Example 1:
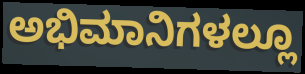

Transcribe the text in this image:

ಅಭಿಮಾನಿಗಳಲ್ಲೂ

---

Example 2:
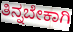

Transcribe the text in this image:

ತಿನ್ನಬೇಕಾಗಿ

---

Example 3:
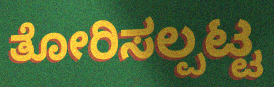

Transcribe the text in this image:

ತೋರಿಸಲ್ಪಟ್ಟ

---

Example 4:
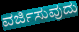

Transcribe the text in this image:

ವರ್ಜಿಸುವುದು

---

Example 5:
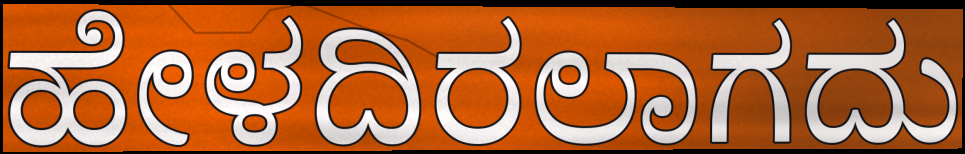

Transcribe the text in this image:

ಹೇಳದಿರಲಾಗದು